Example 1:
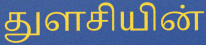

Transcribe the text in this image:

துளசியின்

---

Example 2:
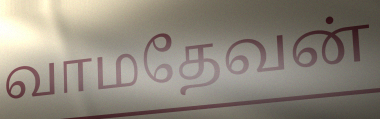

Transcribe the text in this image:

வாமதேவன்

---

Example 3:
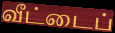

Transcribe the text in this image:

வீட்டைப்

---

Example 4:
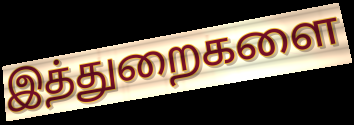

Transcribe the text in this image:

இத்துறைகளை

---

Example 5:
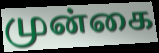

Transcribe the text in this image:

முன்கை